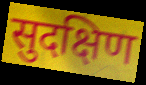
सुदक्षिण